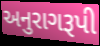
અનુરાગરૂપી